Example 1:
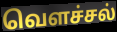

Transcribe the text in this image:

வெளச்சல்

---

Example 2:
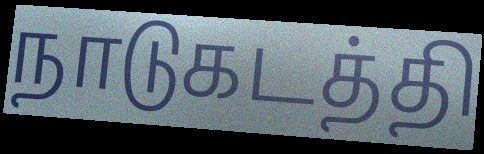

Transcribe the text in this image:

நாடுகடத்தி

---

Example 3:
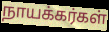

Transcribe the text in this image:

நாயக்கர்கள்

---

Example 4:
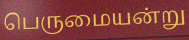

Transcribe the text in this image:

பெருமையன்று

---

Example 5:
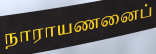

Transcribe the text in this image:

நாராயணனைப்